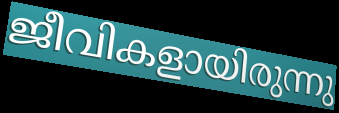
ജീവികളായിരുന്നു